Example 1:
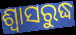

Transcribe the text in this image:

ଶ୍ୱାସରୁଦ୍ଧ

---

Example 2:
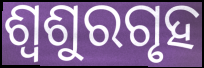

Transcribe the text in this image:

ଶ୍ୱଶୁରଗୃହ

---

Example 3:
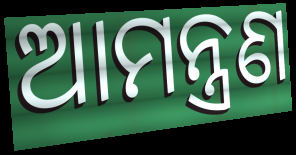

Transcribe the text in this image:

ଆମନ୍ତ୍ରଣ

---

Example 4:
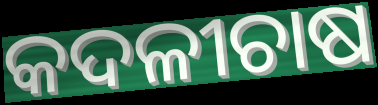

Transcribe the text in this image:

କଦଳୀଚାଷ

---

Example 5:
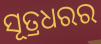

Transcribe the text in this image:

ସୂତ୍ରଧରର